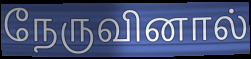
நேருவினால்